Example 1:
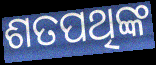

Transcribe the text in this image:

ଶତପଥିଙ୍କ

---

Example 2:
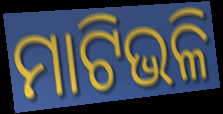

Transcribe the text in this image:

ମାଟିଭଳି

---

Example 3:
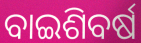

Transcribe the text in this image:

ବାଇଶିବର୍ଷ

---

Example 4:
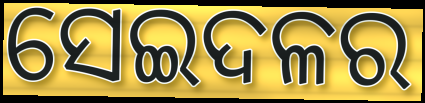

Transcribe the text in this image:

ସେଇଦଳର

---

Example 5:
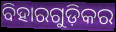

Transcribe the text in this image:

ବିହାରଗୁଡ଼ିକର